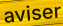
aviser